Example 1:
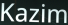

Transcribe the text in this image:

Kazim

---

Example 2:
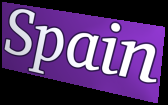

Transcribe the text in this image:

Spain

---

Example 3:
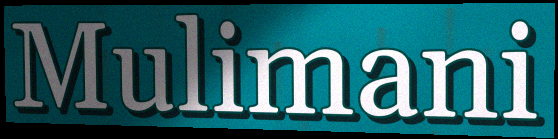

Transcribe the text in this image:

Mulimani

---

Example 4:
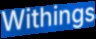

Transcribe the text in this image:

Withings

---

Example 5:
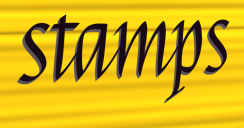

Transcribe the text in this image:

stamps